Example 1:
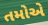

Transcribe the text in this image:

તમોએ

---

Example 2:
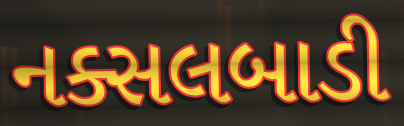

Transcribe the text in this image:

નક્સલબાડી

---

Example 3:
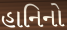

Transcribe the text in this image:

હાનિનો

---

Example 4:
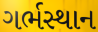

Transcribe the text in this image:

ગર્ભસ્થાન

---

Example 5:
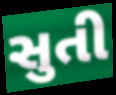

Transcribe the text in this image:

સુતી